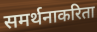
समर्थनाकरिता